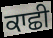
ਕਾਛੀ